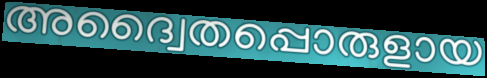
അദ്വൈതപ്പൊരുളായ